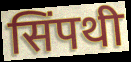
सिंपथी